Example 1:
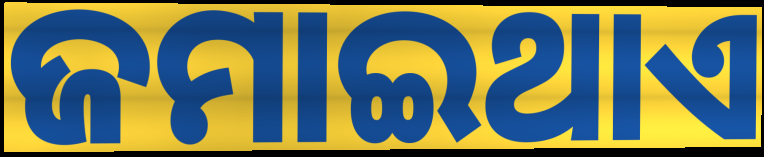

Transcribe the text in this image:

ଜମାଇଥାଏ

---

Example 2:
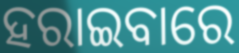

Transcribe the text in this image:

ହରାଇବାରେ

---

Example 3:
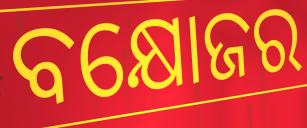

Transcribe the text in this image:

ବକ୍ଷୋଜର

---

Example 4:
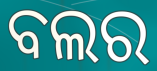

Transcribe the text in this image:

ବଲର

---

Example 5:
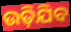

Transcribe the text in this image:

ଉଡ଼ିଯିବ